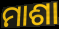
ମାଶା